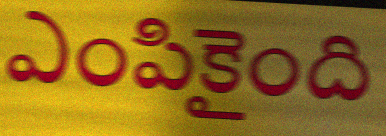
ఎంపికైంది